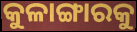
କୁଳାଙ୍ଗାରକୁ